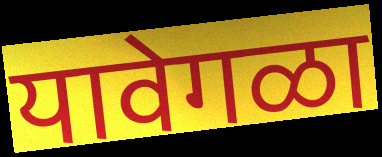
यावेगळा